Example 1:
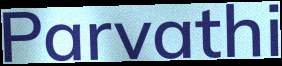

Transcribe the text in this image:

Parvathi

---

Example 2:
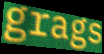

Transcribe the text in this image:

grags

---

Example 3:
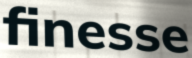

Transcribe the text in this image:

finesse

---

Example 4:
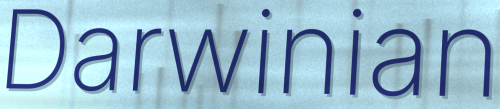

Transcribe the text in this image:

Darwinian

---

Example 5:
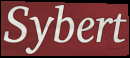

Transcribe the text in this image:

Sybert